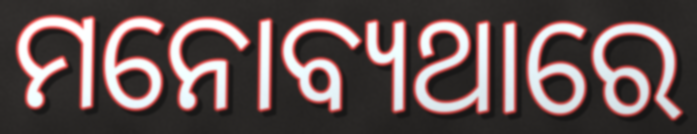
ମନୋବ୍ୟଥାରେ